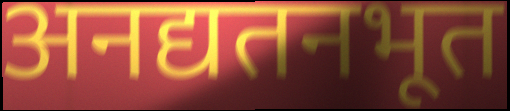
अनद्यतनभूत